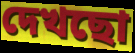
দেখছো